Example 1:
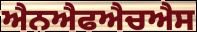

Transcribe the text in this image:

ਐਨਐਫਐਚਐਸ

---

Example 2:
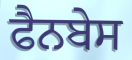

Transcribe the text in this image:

ਫੈਨਬੇਸ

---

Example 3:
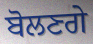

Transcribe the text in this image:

ਬੋਲਣਗੇ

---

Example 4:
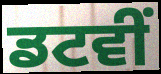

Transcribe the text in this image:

ਡਟਵੀਂ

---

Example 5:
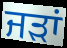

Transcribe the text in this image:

ਜੜਾਂ